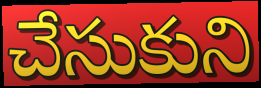
చేసుకుని